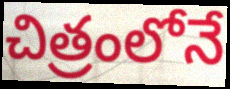
చిత్రంలోనే